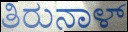
ತಿರುನಾಳ್